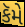
કૅમે